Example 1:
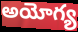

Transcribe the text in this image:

అయోగ్య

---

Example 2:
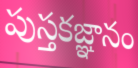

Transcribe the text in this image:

పుస్తకజ్ఞానం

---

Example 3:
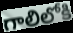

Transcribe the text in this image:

గాలిలోకి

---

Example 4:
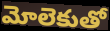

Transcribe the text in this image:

మోలెకుతో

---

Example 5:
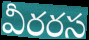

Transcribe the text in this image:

వీరరస